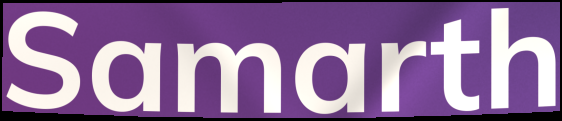
Samarth